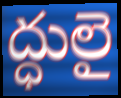
ద్ధులై